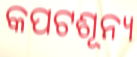
କପଟଶୂନ୍ୟ